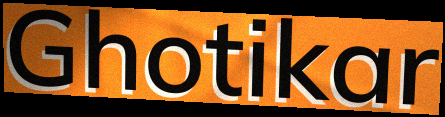
Ghotikar